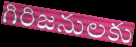
గిరిజనులకు